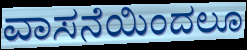
ವಾಸನೆಯಿಂದಲೂ